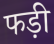
फड़ी